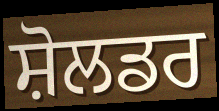
ਸ਼ੋਲਡਰ